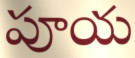
పూయ